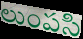
లుంపసి